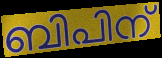
ബിപിന്